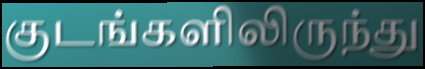
குடங்களிலிருந்து